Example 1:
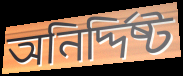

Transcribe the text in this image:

অনির্দ্দিষ্ট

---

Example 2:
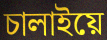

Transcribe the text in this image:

চালাইয়ে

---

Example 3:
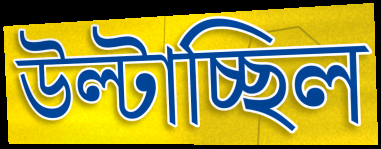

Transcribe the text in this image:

উল্টাচ্ছিল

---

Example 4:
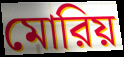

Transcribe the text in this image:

মোরিয়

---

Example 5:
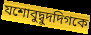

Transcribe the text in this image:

যশোবুদ্বুদদিগকে